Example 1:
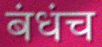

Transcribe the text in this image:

बंधंच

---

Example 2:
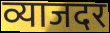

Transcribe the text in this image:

व्याजदर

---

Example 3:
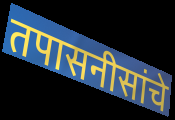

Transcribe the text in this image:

तपासनीसांचे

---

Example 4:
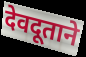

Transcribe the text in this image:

देवदूताने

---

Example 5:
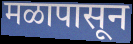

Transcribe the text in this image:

मळापासून